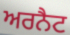
ਅਰਨੈਟ